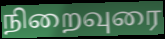
நிறைவுரை